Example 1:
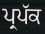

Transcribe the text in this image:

ਪ੍ਰਪੱਕ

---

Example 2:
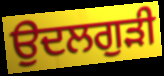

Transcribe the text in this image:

ਉਦਲਗੁੜੀ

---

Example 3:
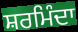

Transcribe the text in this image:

ਸ਼ਰਮਿੰਦਾ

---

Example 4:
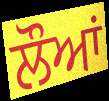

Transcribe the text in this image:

ਲੌਆਂ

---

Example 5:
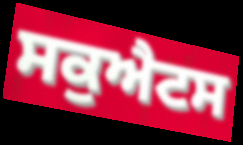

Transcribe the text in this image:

ਸਕੁਐਟਸ